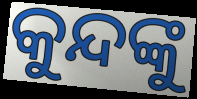
କୁନ୍ଦଙ୍କୁ